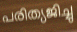
പരിത്യജിച്ചു